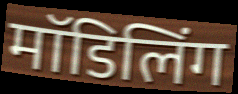
मॉडिलिंग